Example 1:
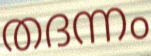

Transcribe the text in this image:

തദന്നം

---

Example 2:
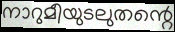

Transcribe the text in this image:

നാറുമീയുടലുതന്റെ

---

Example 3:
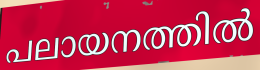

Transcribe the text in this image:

പലായനത്തിൽ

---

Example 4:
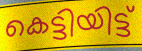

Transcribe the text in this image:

കെട്ടിയിട്ട്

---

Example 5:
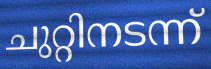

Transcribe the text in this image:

ചുറ്റിനടന്ന്